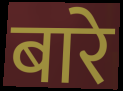
बारे